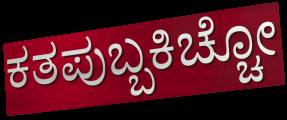
ಕತಪುಬ್ಬಕಿಚ್ಚೋ